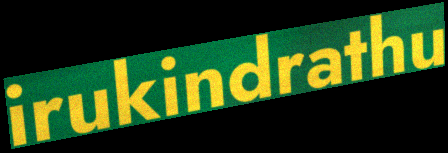
irukindrathu